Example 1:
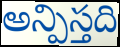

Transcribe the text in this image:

అన్పిస్తది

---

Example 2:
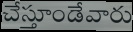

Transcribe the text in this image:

చేస్తూండేవారు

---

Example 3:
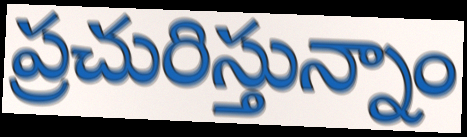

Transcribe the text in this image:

ప్రచురిస్తున్నాం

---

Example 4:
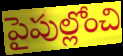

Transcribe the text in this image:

పైపుల్లోంచి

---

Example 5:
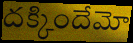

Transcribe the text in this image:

దక్కిందేమో